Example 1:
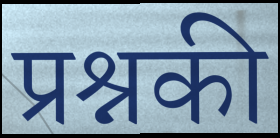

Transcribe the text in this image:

प्रश्नकी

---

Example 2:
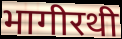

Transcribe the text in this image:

भागीरथी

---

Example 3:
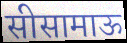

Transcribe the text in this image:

सीसामाऊ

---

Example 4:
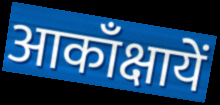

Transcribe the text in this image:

आकाँक्षायें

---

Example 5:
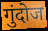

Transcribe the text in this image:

गुंदोज